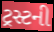
ટ્રસ્ટની